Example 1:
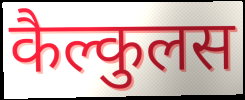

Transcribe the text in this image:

कैल्कुलस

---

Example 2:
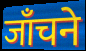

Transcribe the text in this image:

जाँचने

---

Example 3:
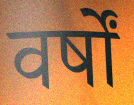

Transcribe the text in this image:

वर्षों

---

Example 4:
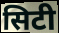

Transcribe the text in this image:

सिटी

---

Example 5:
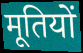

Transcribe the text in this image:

मूतियों